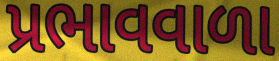
પ્રભાવવાળા